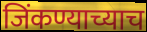
जिंकण्याच्याच